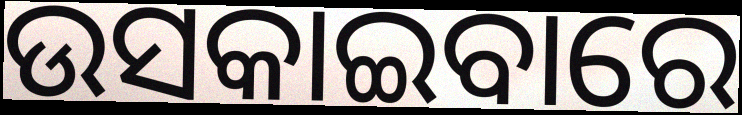
ଉସକାଇବାରେ